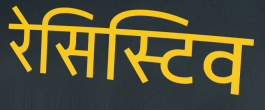
रेसिस्टिव